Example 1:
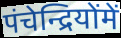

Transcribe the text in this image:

पंचेन्द्रियोंमें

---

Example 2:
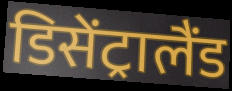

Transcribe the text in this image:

डिसेंट्रालैंड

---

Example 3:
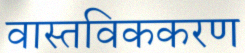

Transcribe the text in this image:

वास्तविककरण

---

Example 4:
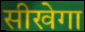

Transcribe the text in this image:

सीखेगा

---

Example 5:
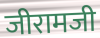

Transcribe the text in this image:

जीरामजी